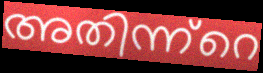
അതിന്ന്റെ